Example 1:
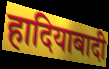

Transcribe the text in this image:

हादियाबादी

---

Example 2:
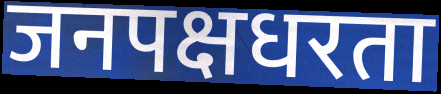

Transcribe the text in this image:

जनपक्षधरता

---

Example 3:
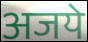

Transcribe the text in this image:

अजये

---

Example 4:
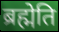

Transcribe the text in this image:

ब्रह्मेति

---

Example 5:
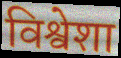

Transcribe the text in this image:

विश्वेशा